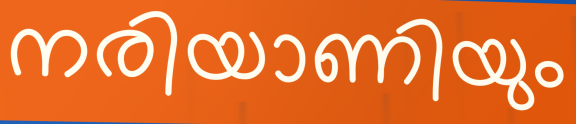
നരിയാണിയും